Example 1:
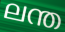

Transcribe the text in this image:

ലന്ത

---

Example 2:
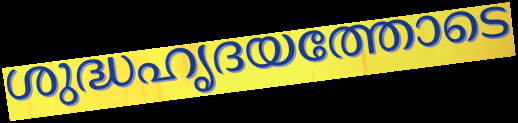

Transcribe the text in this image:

ശുദ്ധഹൃദയത്തോടെ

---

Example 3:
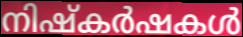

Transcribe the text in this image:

നിഷ്കർഷകൾ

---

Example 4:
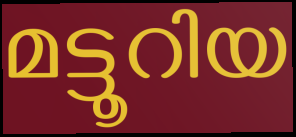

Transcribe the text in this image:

മട്ടൂറിയ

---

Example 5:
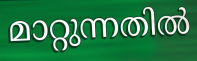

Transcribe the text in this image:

മാറ്റുന്നതിൽ